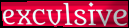
exculsive